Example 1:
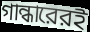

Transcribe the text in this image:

গান্ধারেরই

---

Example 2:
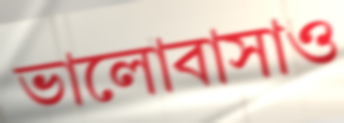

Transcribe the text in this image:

ভালোবাসাও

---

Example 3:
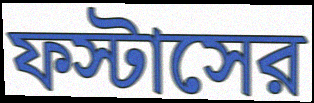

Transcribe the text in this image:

ফস্টাসের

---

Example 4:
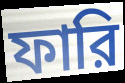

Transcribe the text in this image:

ফারি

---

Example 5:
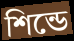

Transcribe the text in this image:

শিন্ডে